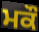
ਮਕੌ